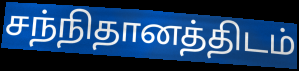
சந்நிதானத்திடம்